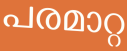
പരമാറ്റ